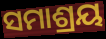
ସମାଶ୍ରୟ